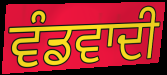
ਵੰਡਵਾਦੀ